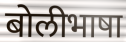
बोलीभाषा